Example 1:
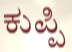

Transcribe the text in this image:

ಕುಪ್ಪಿ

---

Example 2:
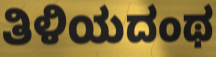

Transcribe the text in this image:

ತಿಳಿಯದಂಥ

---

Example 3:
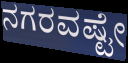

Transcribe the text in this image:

ನಗರವಷ್ಟೇ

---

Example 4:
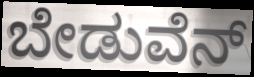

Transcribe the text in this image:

ಬೇಡುವೆನ್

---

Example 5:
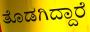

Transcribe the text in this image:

ತೊಡಗಿದ್ದಾರೆ